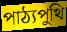
পাঠ্যপুথি